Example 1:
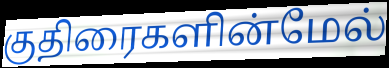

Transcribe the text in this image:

குதிரைகளின்மேல்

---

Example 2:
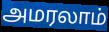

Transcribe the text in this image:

அமரலாம்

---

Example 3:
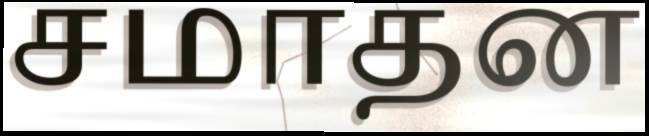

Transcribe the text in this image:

சமாதன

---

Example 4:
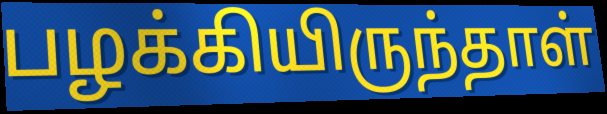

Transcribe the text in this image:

பழக்கியிருந்தாள்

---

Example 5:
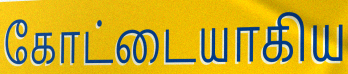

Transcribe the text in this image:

கோட்டையாகிய